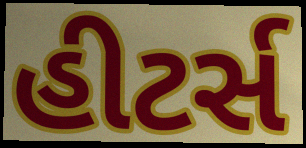
હીટર્સ